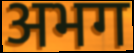
अभग